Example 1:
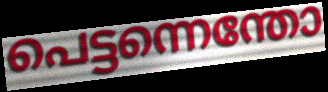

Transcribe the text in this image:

പെട്ടന്നെന്തോ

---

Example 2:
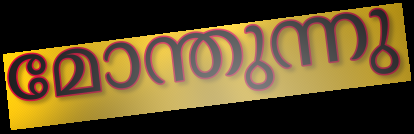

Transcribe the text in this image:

മോന്തുന്നു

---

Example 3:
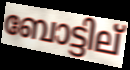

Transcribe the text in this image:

ബോട്ടില്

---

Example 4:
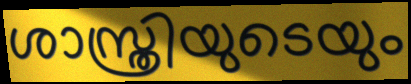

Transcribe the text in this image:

ശാസ്ത്രിയുടെയും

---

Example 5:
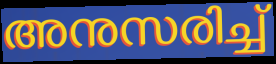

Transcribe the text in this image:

അനുസരിച്ച്